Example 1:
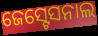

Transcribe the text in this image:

ଜେସ୍ଟେସନାଲ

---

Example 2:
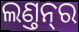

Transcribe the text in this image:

ଲଣ୍ତନ୍‌ର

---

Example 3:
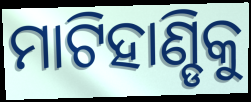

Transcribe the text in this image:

ମାଟିହାଣ୍ଡିକୁ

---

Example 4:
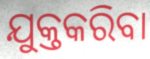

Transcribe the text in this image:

ଯୁକ୍ତକରିବା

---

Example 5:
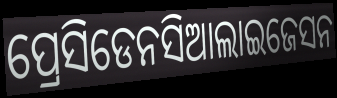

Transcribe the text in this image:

ପ୍ରେସିଡେନସିଆଲାଇଜେସନ